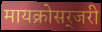
मायक्रोसर्जरी